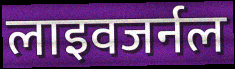
लाइवजर्नल